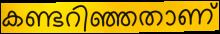
കണ്ടറിഞ്ഞതാണ്